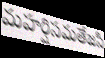
మహర్షిసమతేజసి